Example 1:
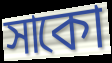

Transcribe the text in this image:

সাকো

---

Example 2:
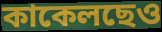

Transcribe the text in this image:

কাকেলছেও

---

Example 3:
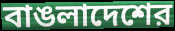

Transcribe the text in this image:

বাঙলাদেশের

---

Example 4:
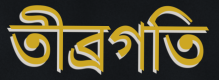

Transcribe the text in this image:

তীব্রগতি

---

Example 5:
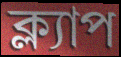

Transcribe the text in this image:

ক্ল্যাপ